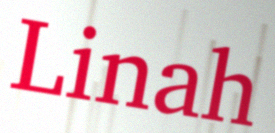
Linah